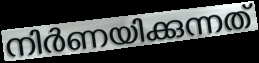
നിർണയിക്കുന്നത്